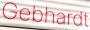
Gebhardt